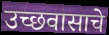
उच्छवासाचे